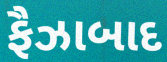
ફૈઝાબાદ